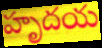
హృదయ